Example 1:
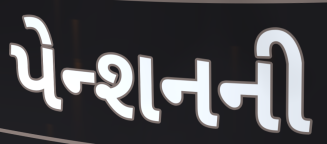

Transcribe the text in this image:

પેન્શનની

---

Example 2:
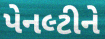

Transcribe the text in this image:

પેનલ્ટીને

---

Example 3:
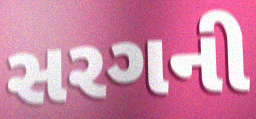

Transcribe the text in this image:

સરગની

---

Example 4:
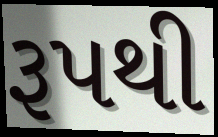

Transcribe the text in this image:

રૂપથી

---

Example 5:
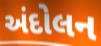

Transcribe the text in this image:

અંદોલન